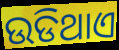
ଉଡିଥାଏ